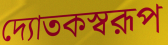
দ্যোতকস্বরূপ